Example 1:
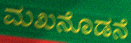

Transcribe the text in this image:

ಮಖನೊಡನೆ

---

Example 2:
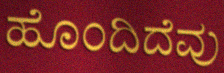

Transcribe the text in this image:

ಹೊಂದಿದೆವು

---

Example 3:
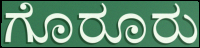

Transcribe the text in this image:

ಗೊರೂರು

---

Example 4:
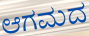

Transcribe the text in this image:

ಆಗಮದ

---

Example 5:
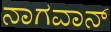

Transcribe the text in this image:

ನಾಗವಾನ್